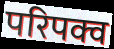
परिपक्व